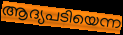
ആദ്യപടിയെന്ന